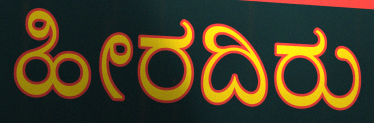
ಹೀರದಿರು